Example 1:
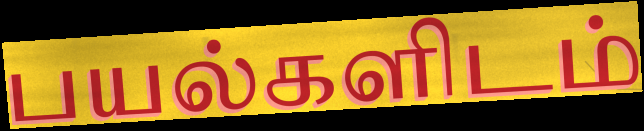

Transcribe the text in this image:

பயல்களிடம்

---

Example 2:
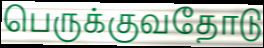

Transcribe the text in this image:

பெருக்குவதோடு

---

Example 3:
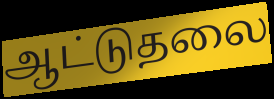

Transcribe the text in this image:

ஆட்டுதலை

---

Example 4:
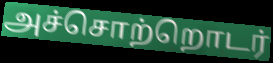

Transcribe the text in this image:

அச்சொற்றொடர்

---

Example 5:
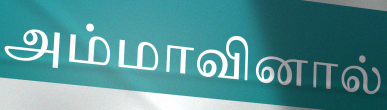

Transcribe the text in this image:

அம்மாவினால்